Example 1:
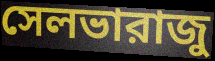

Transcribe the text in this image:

সেলভারাজু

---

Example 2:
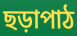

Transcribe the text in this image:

ছড়াপাঠ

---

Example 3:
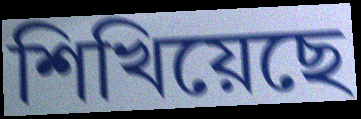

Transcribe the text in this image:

শিখিয়েছে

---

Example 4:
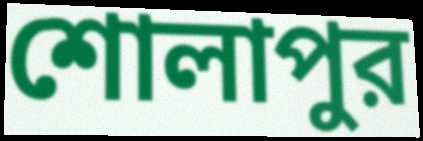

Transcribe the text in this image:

শোলাপুর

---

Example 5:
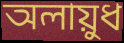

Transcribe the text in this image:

অলায়ুধ